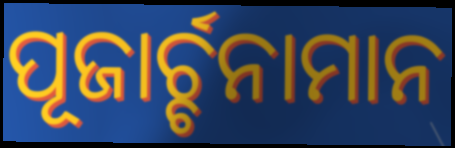
ପୂଜାର୍ଚ୍ଚନାମାନ